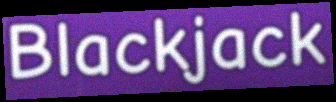
Blackjack